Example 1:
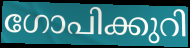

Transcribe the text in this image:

ഗോപിക്കുറി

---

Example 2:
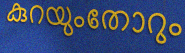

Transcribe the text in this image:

കുറയുംതോറും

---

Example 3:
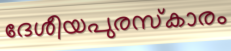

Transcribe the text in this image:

ദേശീയപുരസ്കാരം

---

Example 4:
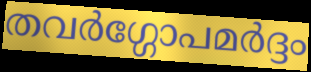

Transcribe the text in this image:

തവർഗ്ഗോപമർദ്ദം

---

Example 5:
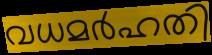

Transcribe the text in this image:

വധമർഹതി